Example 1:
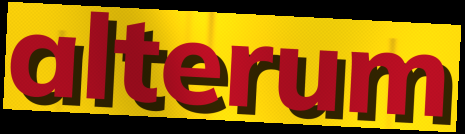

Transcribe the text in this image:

alterum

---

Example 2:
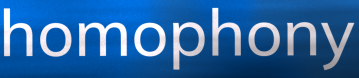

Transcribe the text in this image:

homophony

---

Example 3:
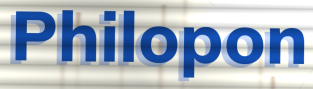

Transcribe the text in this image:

Philopon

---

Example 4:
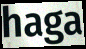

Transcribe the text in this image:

haga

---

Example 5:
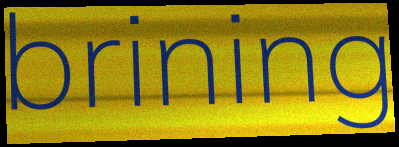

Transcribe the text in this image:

brining